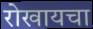
रोखायचा